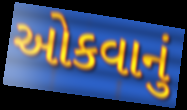
ઓકવાનું